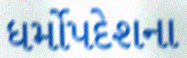
ધર્મોપદેશના